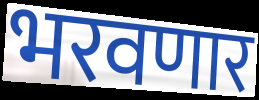
भरवणार